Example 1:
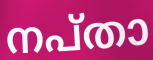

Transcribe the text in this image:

നപ്താ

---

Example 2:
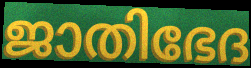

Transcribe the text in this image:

ജാതിഭേദ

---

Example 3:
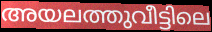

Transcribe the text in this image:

അയലത്തുവീട്ടിലെ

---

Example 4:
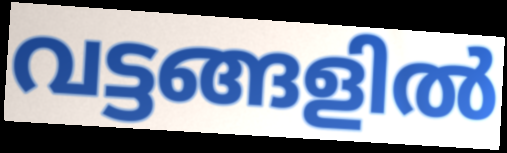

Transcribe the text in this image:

വട്ടങ്ങളിൽ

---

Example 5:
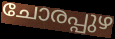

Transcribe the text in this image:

ചോരപ്പുഴ